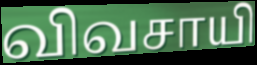
விவசாயி